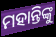
ମହାନ୍ତିଙ୍କୁ